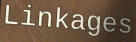
Linkages